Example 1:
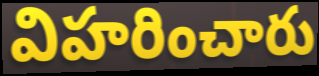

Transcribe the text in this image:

విహరించారు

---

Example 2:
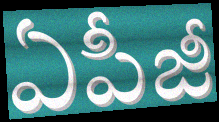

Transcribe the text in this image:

ఏపీజీ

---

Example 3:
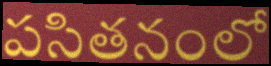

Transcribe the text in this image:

పసితనంలో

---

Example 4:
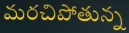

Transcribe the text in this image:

మరచిపోతున్న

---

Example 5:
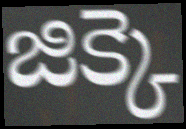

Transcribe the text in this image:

జిక్కె